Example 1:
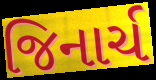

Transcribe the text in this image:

જિનાર્ચ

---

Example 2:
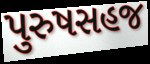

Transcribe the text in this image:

પુરુષસહજ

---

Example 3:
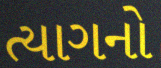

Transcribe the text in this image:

ત્યાગનો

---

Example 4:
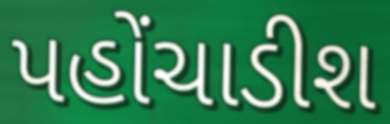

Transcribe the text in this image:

પહોંચાડીશ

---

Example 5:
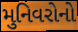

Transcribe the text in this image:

મુનિવરોનો